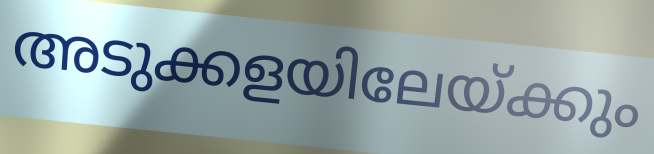
അടുക്കളയിലേയ്ക്കും